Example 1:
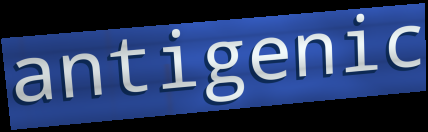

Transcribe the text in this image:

antigenic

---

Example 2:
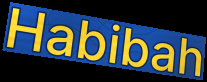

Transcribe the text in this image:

Habibah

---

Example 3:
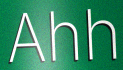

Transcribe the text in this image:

Ahh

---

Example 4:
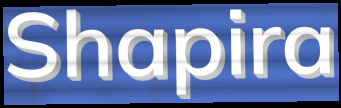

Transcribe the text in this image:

Shapira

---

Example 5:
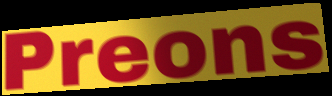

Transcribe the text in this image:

Preons